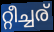
റ്റീച്ചര്